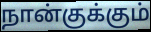
நான்குக்கும்